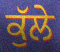
ਕੁੱਲੇ